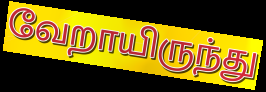
வேறாயிருந்து